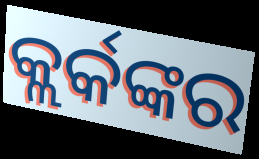
କ୍ଲର୍କଙ୍କର